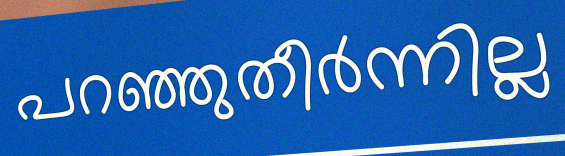
പറഞ്ഞുതീർന്നില്ല